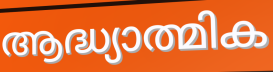
ആദ്ധ്യാത്മിക